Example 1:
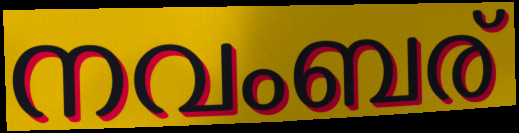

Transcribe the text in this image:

നവംബര്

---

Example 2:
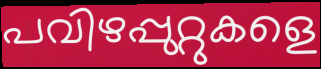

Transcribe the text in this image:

പവിഴപ്പുറ്റുകളെ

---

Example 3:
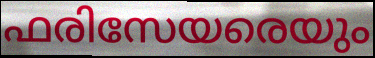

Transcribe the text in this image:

ഫരിസേയരെയും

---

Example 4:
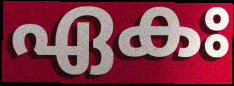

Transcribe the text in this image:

ഏകഃ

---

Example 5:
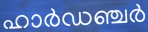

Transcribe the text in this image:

ഹാർഡഞ്ചർ